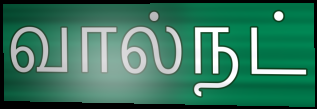
வால்நட்